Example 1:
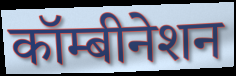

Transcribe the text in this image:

कॉम्बीनेशन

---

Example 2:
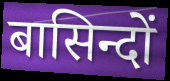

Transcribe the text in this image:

बासिन्दों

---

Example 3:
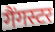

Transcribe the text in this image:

गैंगस्‍टर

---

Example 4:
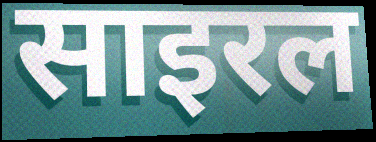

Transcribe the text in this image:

साइरल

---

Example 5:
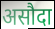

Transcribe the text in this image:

असौदा